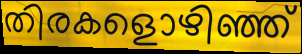
തിരകളൊഴിഞ്ഞ്